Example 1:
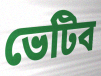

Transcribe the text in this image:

ভেটিব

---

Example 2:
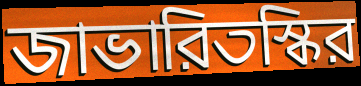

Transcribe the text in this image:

জাভারিতস্কির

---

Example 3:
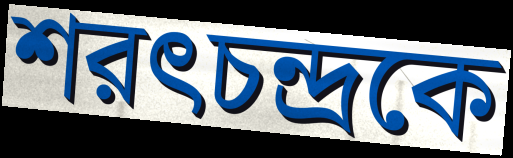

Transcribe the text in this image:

শরৎচন্দ্রকে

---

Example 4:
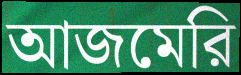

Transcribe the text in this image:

আজমেরি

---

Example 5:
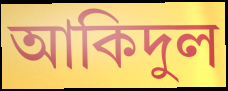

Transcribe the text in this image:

আকিদুল